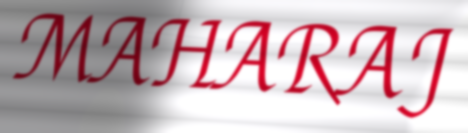
MAHARAJ